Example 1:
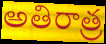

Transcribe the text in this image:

అతిరాత్ర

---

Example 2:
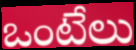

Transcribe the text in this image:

ఒంటేలు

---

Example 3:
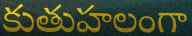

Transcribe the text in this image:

కుతుహలంగా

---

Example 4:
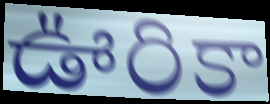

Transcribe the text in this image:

ఊరికా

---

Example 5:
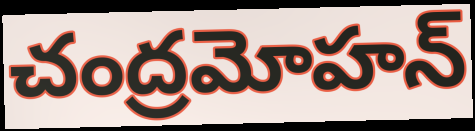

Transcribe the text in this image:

చంద్రమోహన్